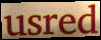
usred